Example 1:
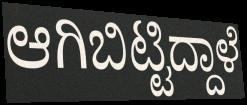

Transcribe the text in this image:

ಆಗಿಬಿಟ್ಟಿದ್ದಾಳೆ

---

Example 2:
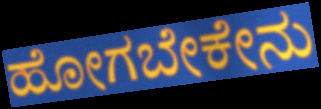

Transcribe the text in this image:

ಹೋಗಬೇಕೇನು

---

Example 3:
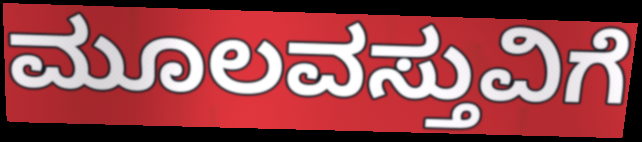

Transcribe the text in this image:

ಮೂಲವಸ್ತುವಿಗೆ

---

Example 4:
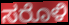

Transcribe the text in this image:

ಸರೊಳಿ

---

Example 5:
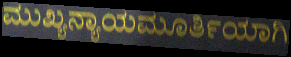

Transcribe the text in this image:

ಮುಖ್ಯನ್ಯಾಯಮೂರ್ತಿಯಾಗಿ